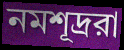
নমশূদ্ররা